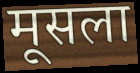
मूसला